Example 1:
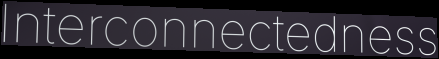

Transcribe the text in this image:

Interconnectedness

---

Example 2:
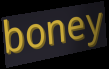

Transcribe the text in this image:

boney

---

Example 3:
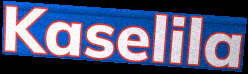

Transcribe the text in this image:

Kaselila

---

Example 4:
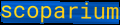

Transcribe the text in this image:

scoparium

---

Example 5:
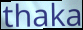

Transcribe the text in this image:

thaka